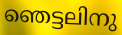
ഞെട്ടലിനു